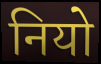
नियो